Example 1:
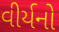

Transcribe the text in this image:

વીર્યનો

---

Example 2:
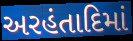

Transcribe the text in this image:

અરહંતાદિમાં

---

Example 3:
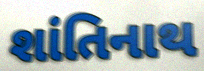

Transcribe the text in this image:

શાંતિનાથ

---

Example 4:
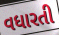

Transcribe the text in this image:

વધારતી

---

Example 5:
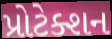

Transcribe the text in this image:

પ્રોટેક્શન